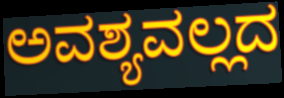
ಅವಶ್ಯವಲ್ಲದ